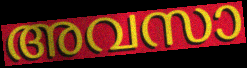
അവസാ